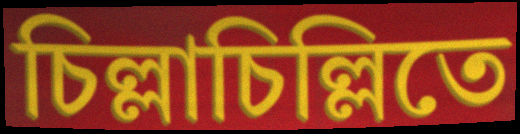
চিল্লাচিল্লিতে